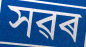
সৱৰ